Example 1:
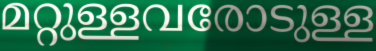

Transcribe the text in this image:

മറ്റുള്ളവരോടുള്ള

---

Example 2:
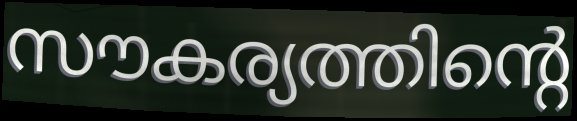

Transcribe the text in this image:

സൗകര്യത്തിന്റെ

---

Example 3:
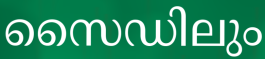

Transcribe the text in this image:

സൈഡിലും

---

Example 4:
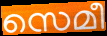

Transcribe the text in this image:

സെമീ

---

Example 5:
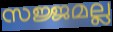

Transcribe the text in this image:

സജ്ജമല്ല